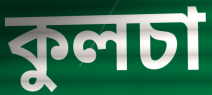
কুলচা